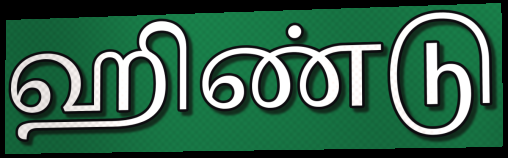
ஹிண்டு